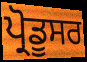
ਪ੍ਰੋਡੂਸਰ